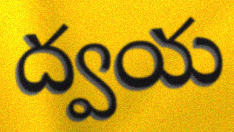
ద్వయ